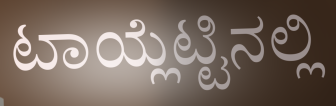
ಟಾಯ್ಲೆಟ್ಟಿನಲ್ಲಿ